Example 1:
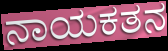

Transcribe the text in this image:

ನಾಯಕತನ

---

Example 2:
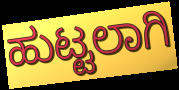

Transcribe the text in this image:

ಹುಟ್ಟಲಾಗಿ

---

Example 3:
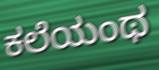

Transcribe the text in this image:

ಕಲೆಯಂಥ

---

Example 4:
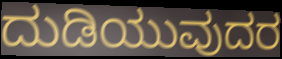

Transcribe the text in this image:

ದುಡಿಯುವುದರ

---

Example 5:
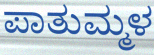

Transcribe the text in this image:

ಪಾತುಮ್ಮಳ